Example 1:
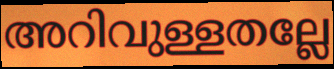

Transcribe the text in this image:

അറിവുള്ളതല്ലേ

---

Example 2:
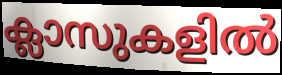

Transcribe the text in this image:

ക്ലാസുകളിൽ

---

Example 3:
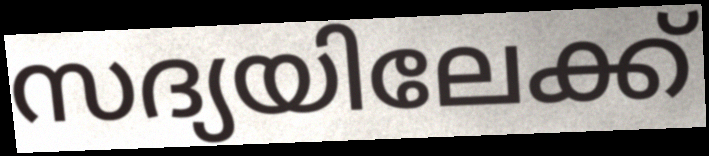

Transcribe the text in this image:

സദ്യയിലേക്ക്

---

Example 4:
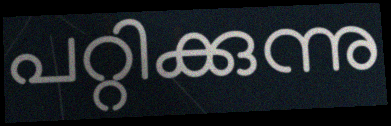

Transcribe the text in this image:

പറ്റിക്കുന്നു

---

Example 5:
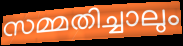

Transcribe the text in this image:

സമ്മതിച്ചാലും